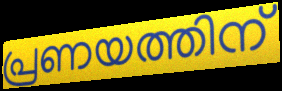
പ്രണയത്തിന്